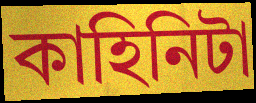
কাহিনিটা